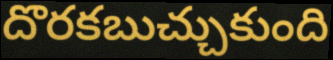
దొరకబుచ్చుకుంది